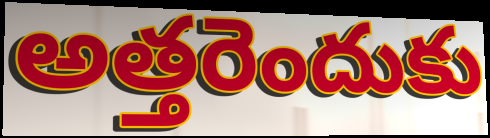
అత్తరెందుకు